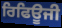
ਰਿਫਿਊਜੀ